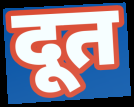
दूत